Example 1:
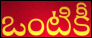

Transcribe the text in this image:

ఒంటికీ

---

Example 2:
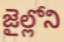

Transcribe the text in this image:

జైల్లోని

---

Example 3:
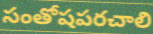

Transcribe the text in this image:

సంతోషపరచాలి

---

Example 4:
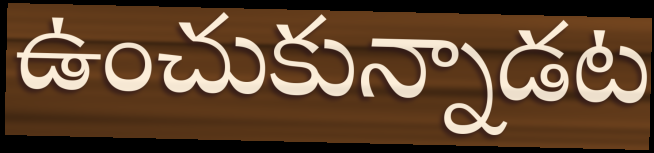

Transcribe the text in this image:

ఉంచుకున్నాడట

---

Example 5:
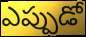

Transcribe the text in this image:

ఎప్పుడో